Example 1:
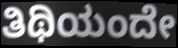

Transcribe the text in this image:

ತಿಥಿಯಂದೇ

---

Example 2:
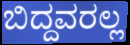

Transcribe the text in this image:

ಬಿದ್ದವರಲ್ಲ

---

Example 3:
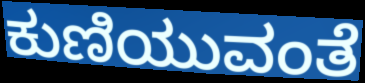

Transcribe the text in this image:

ಕುಣಿಯುವಂತೆ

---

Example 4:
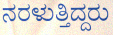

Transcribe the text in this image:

ನರಳುತ್ತಿದ್ದರು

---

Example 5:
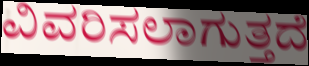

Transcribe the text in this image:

ವಿವರಿಸಲಾಗುತ್ತದೆ